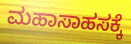
ಮಹಾಸಾಹಸಕ್ಕೆ